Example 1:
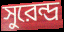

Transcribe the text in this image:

সুরেন্দ্র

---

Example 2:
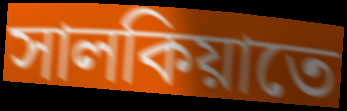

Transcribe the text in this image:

সালকিয়াতে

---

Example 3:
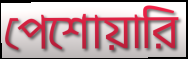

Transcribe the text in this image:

পেশোয়ারি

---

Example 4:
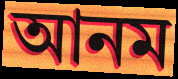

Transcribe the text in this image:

আনম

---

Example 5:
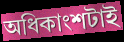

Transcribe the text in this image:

অধিকাংশটাই